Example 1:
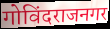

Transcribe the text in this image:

गोविंदराजनगर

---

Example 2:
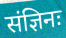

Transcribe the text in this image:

संज्ञिनः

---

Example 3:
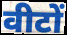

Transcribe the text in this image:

वीटों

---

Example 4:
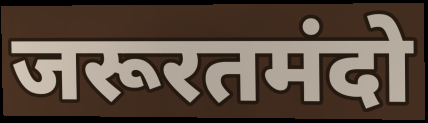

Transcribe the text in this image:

जरूरतमंदो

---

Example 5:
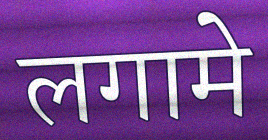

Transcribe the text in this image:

लगामे